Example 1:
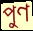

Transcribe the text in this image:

পুণ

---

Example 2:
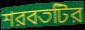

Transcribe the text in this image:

শরবতটির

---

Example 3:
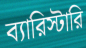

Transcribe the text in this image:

ব্যারিস্টারি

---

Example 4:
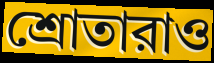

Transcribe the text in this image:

শ্রোতারাও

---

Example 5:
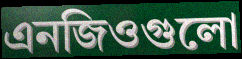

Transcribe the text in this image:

এনজিওগুলো